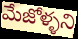
మేజోళ్ళని